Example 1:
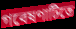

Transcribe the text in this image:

গবেষণাটিতে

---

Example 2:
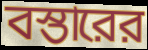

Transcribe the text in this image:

বস্তারের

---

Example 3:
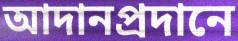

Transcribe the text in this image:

আদানপ্রদানে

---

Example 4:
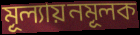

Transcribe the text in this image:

মূল্যায়নমূলক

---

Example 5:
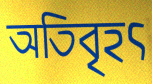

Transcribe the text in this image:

অতিবৃহৎ